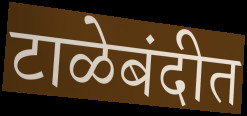
टाळेबंदीत